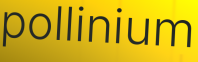
pollinium